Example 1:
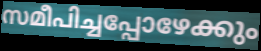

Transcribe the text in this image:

സമീപിച്ചപ്പോഴേക്കും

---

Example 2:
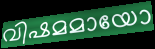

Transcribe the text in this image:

വിഷമമായോ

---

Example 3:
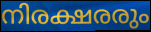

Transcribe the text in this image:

നിരക്ഷരരും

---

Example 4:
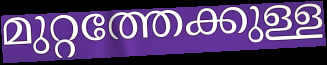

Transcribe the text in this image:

മുറ്റത്തേക്കുള്ള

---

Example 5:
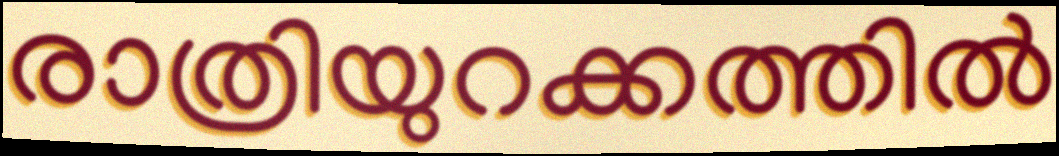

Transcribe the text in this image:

രാത്രിയുറക്കത്തിൽ